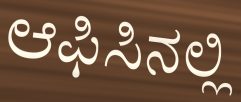
ಆಫಿಸಿನಲ್ಲಿ